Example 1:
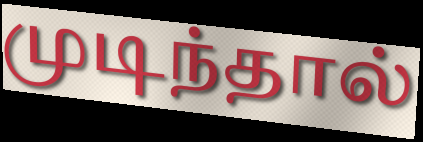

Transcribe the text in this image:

முடிந்தால்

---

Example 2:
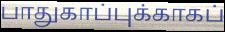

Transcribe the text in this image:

பாதுகாப்புக்காகப்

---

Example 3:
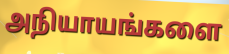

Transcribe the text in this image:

அநியாயங்களை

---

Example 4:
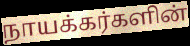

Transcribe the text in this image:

நாயக்கர்களின்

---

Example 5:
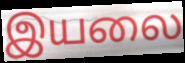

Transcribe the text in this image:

இயலை